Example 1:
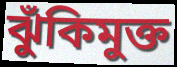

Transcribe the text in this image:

ঝুঁকিমুক্ত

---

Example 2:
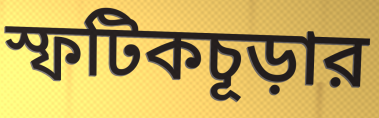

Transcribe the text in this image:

স্ফটিকচূড়ার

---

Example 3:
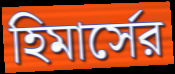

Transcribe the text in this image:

হিমার্সের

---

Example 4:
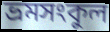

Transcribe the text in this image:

ভ্রমসংকুল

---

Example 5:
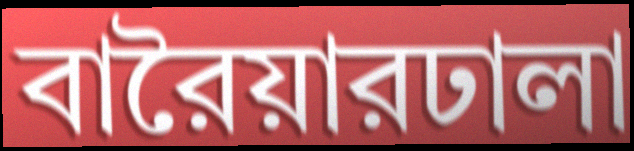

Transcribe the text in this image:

বারৈয়ারঢালা